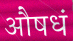
औषधं